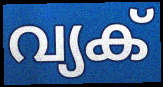
വ്യക്